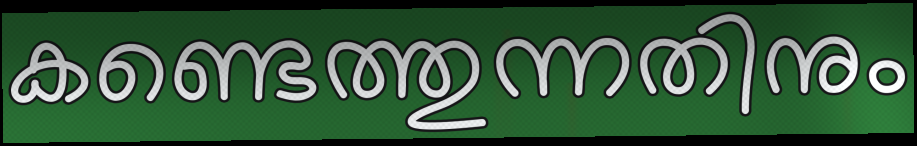
കണ്ടെത്തുന്നതിനും